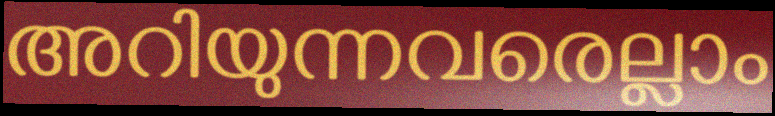
അറിയുന്നവരെല്ലാം